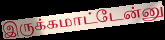
இருக்கமாட்டேன்னு